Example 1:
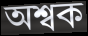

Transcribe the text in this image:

অশ্বক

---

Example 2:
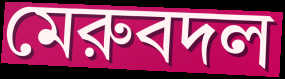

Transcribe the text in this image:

মেরুবদল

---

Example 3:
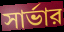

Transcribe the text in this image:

সার্ভার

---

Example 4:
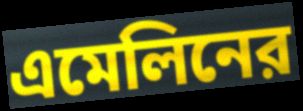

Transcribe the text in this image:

এমেলিনের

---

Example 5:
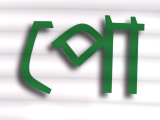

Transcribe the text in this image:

পো